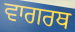
ਵਾਗਰਥ